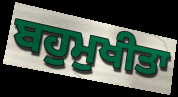
ਬਹੁਮੁਖੀਤਾ